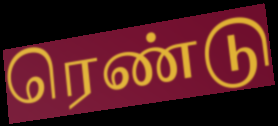
ரெண்டு